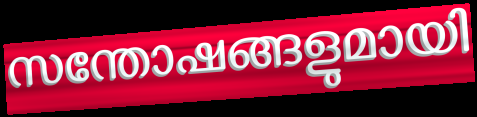
സന്തോഷങ്ങളുമായി